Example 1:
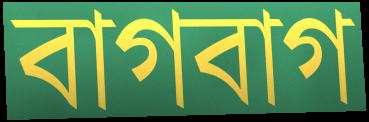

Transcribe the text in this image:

বাগবাগ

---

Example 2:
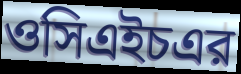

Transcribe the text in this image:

ওসিএইচএর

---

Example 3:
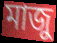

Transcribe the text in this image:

মাজু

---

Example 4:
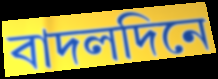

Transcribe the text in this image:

বাদলদিনে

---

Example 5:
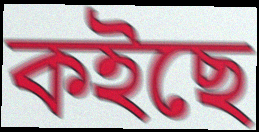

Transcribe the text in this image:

কইছে